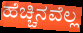
ಹೆಚ್ಚಿನವೆಲ್ಲ